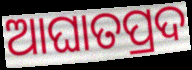
ଆଘାତପ୍ରଦ